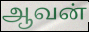
ஆவன்